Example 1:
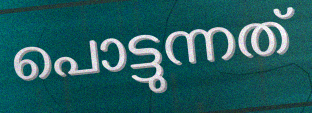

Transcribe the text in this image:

പൊട്ടുന്നത്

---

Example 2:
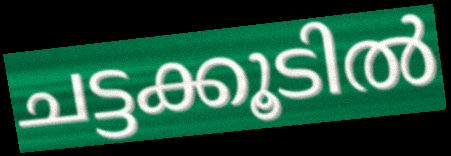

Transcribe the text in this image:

ചട്ടക്കൂടിൽ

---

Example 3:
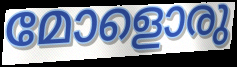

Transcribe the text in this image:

മോളൊരു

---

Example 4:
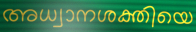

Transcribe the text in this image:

അധ്വാനശക്തിയെ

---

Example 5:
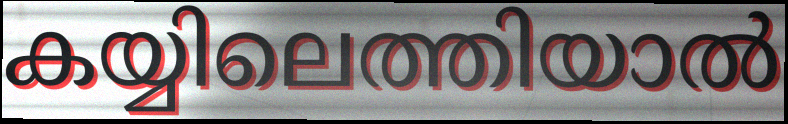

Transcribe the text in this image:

കയ്യിലെത്തിയാൽ